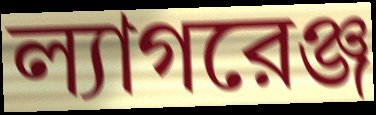
ল্যাগরেঞ্জ